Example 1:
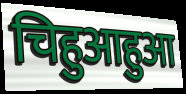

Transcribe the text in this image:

चिहुआहुआ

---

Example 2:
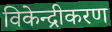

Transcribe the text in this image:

विकेन्द्रीकरण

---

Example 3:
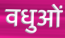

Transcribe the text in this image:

वधुओं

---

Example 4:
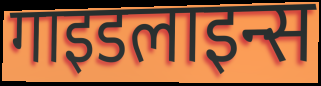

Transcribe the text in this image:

गाइडलाइन्स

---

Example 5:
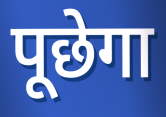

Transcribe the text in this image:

पूछेगा